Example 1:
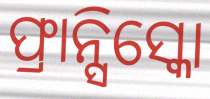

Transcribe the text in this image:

ଫ୍ରାନ୍ସିସ୍କୋ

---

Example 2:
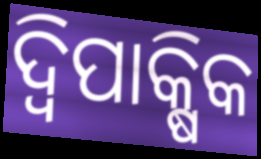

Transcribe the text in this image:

ଦ୍ବିପାକ୍ଷିକ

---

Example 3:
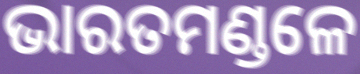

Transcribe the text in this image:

ଭାରତମଣ୍ଡଳେ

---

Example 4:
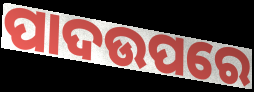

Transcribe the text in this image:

ପାଦଉପରେ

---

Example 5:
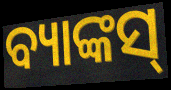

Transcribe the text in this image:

ବ୍ୟାଙ୍କସ୍